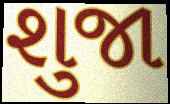
શુજા